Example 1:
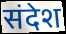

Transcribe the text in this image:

संदेश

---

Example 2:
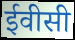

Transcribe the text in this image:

ईवीसी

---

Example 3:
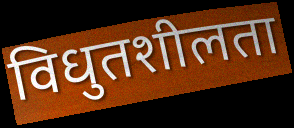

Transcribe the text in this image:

विधुतशीलता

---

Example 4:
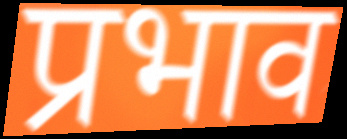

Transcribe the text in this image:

प्रभाव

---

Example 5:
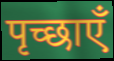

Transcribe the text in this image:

पृच्छाएँ